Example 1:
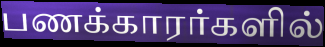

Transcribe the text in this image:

பணக்காரர்களில்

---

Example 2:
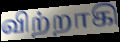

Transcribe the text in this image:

விற்றாகி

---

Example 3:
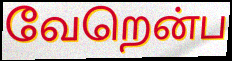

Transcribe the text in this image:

வேறென்ப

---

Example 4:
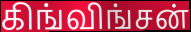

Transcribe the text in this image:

கிங்விங்சன்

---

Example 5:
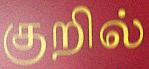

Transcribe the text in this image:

குறில்